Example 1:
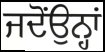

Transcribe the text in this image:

ਜਦੋਂਉਨ੍ਹਾਂ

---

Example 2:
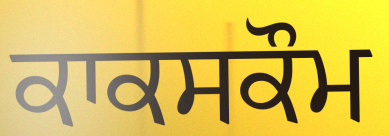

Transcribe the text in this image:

ਕਾਕਸਕੌਮ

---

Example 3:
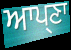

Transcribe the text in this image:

ਆਪ੍ਣਾ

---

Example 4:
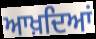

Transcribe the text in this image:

ਆਖ਼ਦਿਆਂ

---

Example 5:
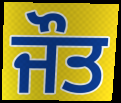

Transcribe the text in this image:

ਜੌਤ